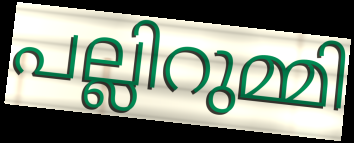
പല്ലിറുമ്മി